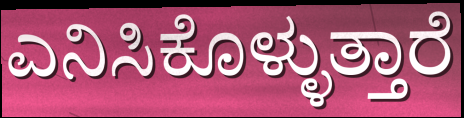
ಎನಿಸಿಕೊಳ್ಳುತ್ತಾರೆ